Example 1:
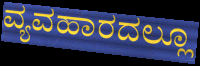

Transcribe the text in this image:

ವ್ಯವಹಾರದಲ್ಲೂ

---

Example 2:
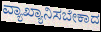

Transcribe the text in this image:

ವ್ಯಾಖ್ಯಾನಿಸಬೇಕಾದ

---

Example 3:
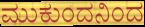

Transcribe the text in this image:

ಮುಕುಂದನಿಂದ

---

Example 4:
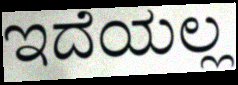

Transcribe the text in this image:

ಇದೆಯಲ್ಲ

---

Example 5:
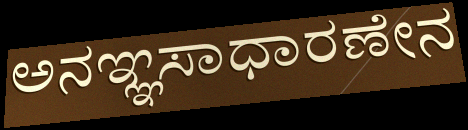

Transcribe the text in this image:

ಅನಞ್ಞಸಾಧಾರಣೇನ